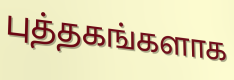
புத்தகங்களாக